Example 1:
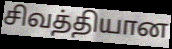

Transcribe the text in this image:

சிவத்தியான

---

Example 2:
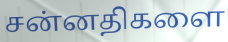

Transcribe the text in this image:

சன்னதிகளை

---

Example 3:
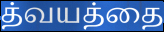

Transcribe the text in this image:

த்வயத்தை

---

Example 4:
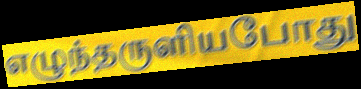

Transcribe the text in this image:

எழுந்தருளியபோது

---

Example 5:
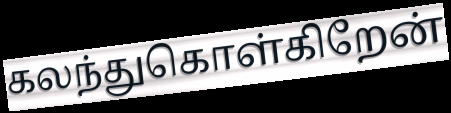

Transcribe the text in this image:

கலந்துகொள்கிறேன்